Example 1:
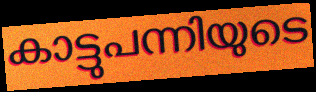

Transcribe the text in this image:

കാട്ടുപന്നിയുടെ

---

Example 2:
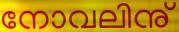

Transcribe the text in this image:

നോവലിനു്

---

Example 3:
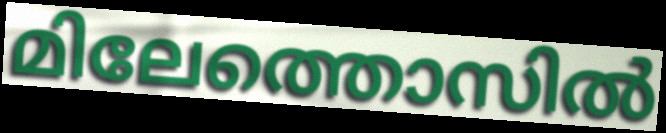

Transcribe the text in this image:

മിലേത്തൊസിൽ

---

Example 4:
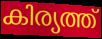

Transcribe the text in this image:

കിര്യത്ത്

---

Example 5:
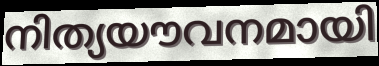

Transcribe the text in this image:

നിത്യയൗവനമായി